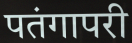
पतंगापरी